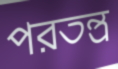
পরতন্ত্র